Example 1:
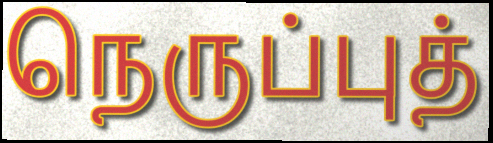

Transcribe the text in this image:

நெருப்புத்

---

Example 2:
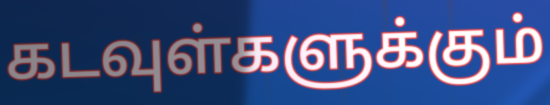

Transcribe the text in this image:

கடவுள்களுக்கும்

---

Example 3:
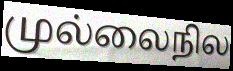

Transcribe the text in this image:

முல்லைநில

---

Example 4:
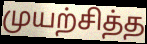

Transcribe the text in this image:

முயற்சித்த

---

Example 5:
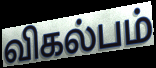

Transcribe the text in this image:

விகல்பம்